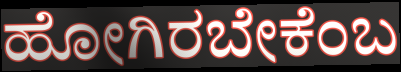
ಹೋಗಿರಬೇಕೆಂಬ